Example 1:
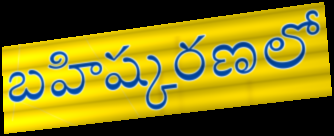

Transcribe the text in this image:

బహిష్కరణలో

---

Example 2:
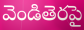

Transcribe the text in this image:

వెండితెరపై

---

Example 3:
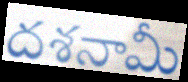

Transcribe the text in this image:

దశనామీ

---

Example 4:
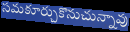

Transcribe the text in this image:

సమకూర్చుకొనుచున్నావు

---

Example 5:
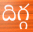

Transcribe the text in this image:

దిగ్గ